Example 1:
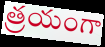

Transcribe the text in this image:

త్రయంగా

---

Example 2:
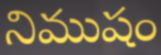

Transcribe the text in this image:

నిముషం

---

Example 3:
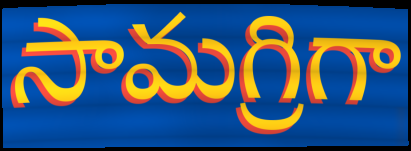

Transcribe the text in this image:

సామగ్రిగా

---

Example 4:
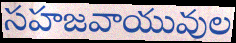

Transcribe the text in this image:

సహజవాయువుల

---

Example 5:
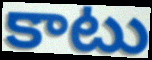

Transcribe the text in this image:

కాటు